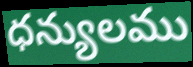
ధన్యులము